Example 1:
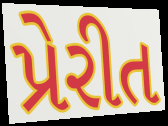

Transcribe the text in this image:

પ્રેરીત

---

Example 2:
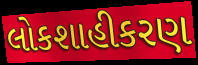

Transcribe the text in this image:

લોકશાહીકરણ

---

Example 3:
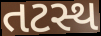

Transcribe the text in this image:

તટસ્થ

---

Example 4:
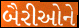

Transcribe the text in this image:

બૈરીઓને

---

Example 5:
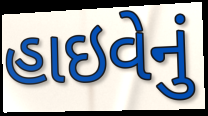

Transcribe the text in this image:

હાઇવેનું